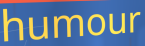
humour